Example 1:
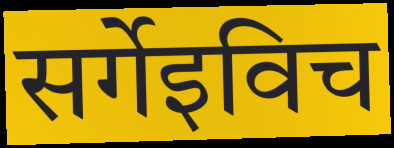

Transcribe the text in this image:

सर्गेइविच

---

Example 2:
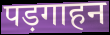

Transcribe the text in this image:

पड़गाहन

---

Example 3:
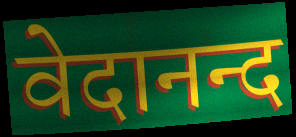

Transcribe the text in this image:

वेदानन्द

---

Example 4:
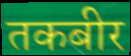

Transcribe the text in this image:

तकबीर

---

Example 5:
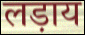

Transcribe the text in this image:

लड़ाय